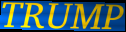
TRUMP